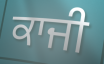
ਕਾਜੀ